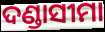
ଦଣ୍ଡାସୀମା